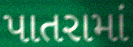
પાતરામાં